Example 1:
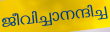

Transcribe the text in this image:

ജീവിച്ചാനന്ദിച്ച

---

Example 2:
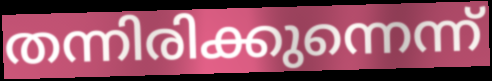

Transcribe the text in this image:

തന്നിരിക്കുന്നെന്ന്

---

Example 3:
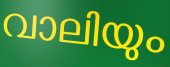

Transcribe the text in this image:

വാലിയും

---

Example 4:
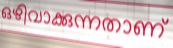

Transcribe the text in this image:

ഒഴിവാക്കുന്നതാണ്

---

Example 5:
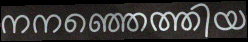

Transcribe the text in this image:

നനഞ്ഞെത്തിയ